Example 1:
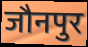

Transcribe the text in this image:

जौनपुर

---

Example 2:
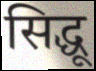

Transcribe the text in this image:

सिद्धू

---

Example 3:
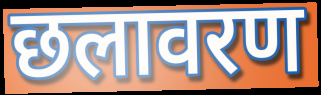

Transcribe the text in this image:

छलावरण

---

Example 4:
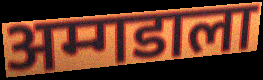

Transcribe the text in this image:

अम्गडाला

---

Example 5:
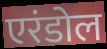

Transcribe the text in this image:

एरंडोल